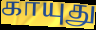
காயுது